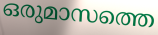
ഒരുമാസത്തെ